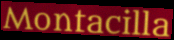
Montacilla